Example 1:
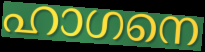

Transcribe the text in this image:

ഹാഗനെ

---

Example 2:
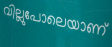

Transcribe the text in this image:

വില്ലുപോലെയാണ്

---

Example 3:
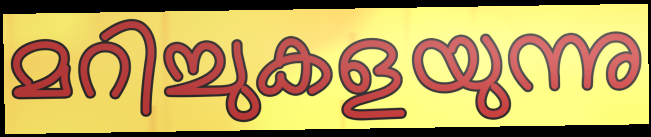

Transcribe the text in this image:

മറിച്ചുകളയുന്നു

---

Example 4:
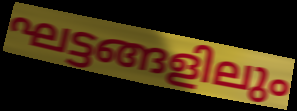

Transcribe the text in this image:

ഘട്ടങ്ങളിലും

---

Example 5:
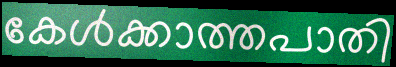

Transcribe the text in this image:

കേൾക്കാത്തപാതി